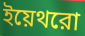
ইয়েথরো